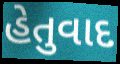
હેતુવાદ